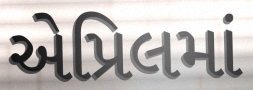
એપ્રિલમાં